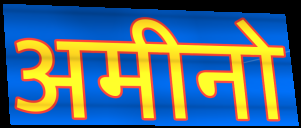
अमीनो